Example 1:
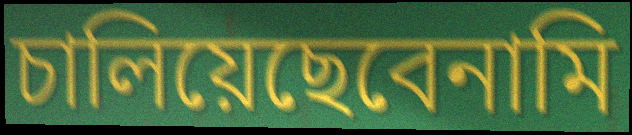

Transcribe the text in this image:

চালিয়েছেবেনামি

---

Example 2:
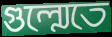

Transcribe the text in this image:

গুল্মেতে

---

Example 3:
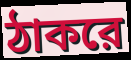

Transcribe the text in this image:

ঠাকরে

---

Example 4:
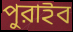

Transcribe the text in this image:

পুরাইব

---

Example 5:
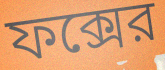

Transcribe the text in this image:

ফক্সের